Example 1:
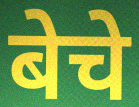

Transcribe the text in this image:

बेचे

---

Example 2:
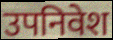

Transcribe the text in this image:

उपनिवेश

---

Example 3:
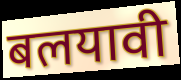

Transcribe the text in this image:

बलयावी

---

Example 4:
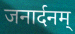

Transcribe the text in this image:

जनार्दनम्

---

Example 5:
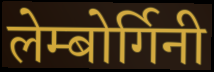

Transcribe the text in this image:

लेम्बोर्गिनी